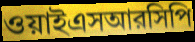
ওয়াইএসআরসিপি